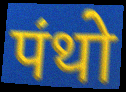
पंथो